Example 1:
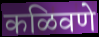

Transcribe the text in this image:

कळिवणे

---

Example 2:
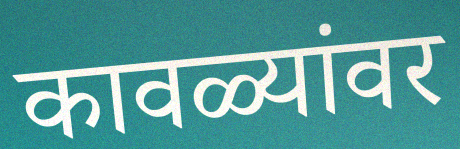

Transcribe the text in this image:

कावळ्यांवर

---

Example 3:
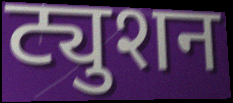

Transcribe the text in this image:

ट्युशन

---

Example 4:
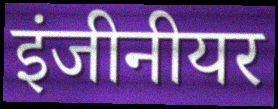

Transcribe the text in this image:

इंजीनीयर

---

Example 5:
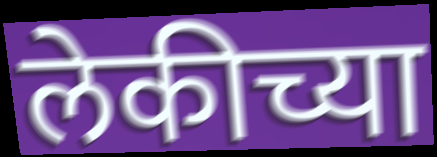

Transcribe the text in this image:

लेकीच्या